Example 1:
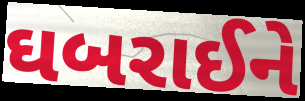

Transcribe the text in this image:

ઘબરાઈને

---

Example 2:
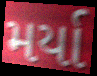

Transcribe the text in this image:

મર્યા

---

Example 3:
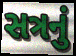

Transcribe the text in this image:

સત્રનું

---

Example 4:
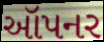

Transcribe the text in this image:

ઑપનર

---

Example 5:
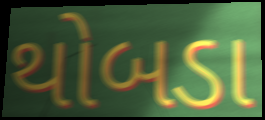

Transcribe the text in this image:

થોબડા